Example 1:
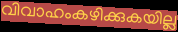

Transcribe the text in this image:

വിവാഹംകഴിക്കുകയില്ല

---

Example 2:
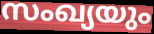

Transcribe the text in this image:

സംഖ്യയും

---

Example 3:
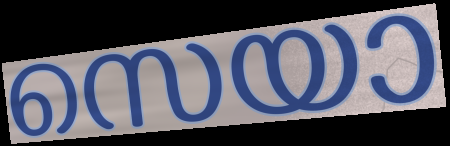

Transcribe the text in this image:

സെയാ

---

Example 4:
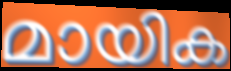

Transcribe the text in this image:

മായിക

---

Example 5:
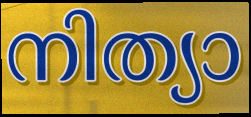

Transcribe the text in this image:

നിത്യാ